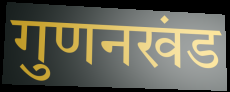
गुणनखंड